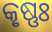
କୃଷ୍ଣଃ